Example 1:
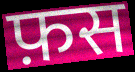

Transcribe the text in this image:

फ़स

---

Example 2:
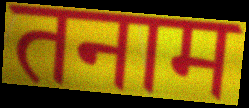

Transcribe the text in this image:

तनाम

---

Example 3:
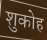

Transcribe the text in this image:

शुकोह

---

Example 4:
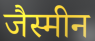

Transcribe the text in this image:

जैस्मीन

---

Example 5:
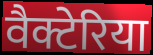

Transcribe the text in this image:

वैक्टेरिया